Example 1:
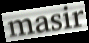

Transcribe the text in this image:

masir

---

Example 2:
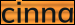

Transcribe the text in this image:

cinna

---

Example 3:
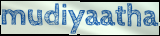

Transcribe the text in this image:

mudiyaatha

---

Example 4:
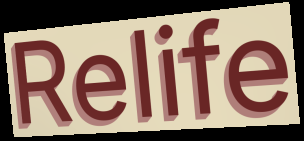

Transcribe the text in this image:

Relife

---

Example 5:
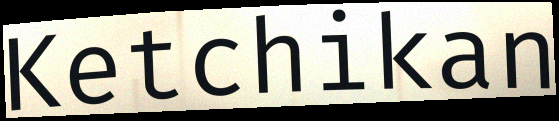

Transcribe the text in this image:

Ketchikan